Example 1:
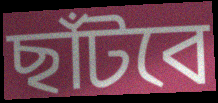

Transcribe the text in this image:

ছাঁটবে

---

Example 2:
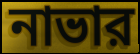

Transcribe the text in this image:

নাভার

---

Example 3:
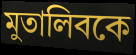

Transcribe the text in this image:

মুতালিবকে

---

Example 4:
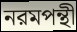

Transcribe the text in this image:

নরমপন্থী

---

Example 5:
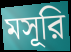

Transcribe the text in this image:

মসূরি